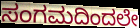
ಸಂಗಮದಿಂದಲೇ